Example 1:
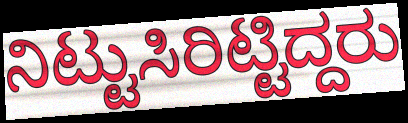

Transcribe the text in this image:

ನಿಟ್ಟುಸಿರಿಟ್ಟಿದ್ದರು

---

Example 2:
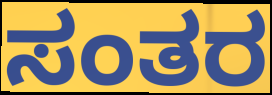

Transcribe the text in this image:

ಸಂತರ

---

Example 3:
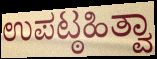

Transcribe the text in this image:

ಉಪಟ್ಠಹಿತ್ವಾ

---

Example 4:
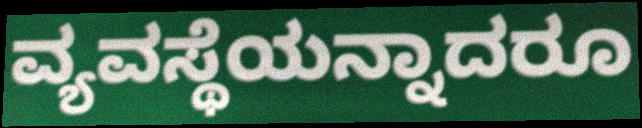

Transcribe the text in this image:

ವ್ಯವಸ್ಥೆಯನ್ನಾದರೂ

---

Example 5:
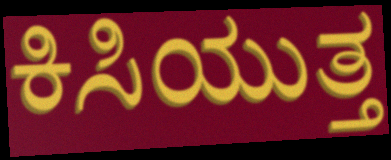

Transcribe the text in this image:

ಕಿಸಿಯುತ್ತ